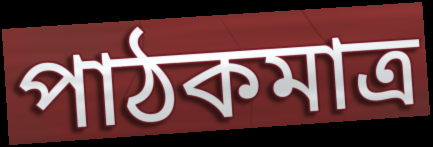
পাঠকমাত্র